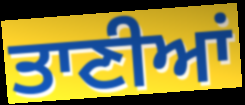
ਤਾਣੀਆਂ